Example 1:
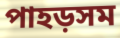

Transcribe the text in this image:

পাহড়সম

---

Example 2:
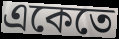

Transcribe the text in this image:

একেতে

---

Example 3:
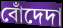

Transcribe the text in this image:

বোঁদেদা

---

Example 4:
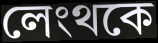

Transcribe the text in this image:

লেংথকে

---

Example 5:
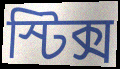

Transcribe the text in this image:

স্টিক্স